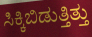
ಸಿಕ್ಕಿಬಿಡುತ್ತಿತ್ತು